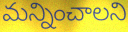
మన్నించాలని